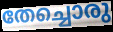
തേച്ചൊരു